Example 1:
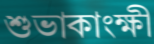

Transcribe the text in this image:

শুভাকাংক্ষী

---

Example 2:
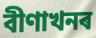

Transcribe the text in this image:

বীণাখনৰ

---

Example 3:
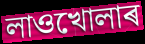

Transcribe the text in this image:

লাওখোলাৰ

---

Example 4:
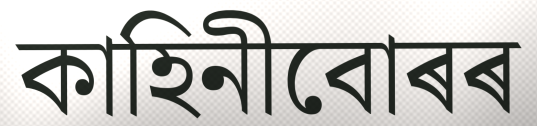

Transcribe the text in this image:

কাহিনীবোৰৰ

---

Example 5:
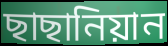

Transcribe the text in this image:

ছাছানিয়ান